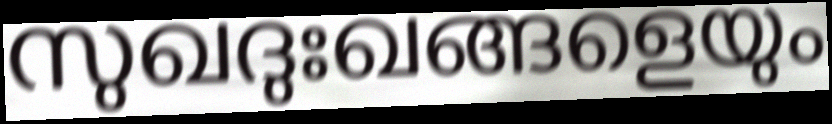
സുഖദുഃഖങ്ങളെയും